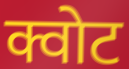
क्वोट